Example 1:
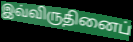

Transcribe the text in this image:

இவ்விருதினைப்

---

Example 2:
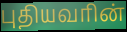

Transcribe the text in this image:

புதியவரின்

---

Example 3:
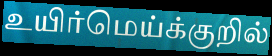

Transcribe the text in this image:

உயிர்மெய்க்குறில்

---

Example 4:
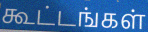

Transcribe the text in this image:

கூட்டங்கள்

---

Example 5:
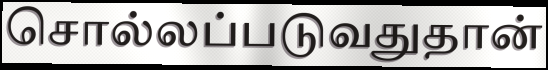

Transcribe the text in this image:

சொல்லப்படுவதுதான்